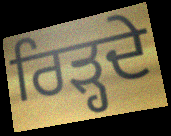
ਰਿੜ੍ਹਦੇ